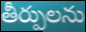
తీర్పులను